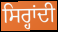
ਸਿਰ੍ਹਾਂਦੀ